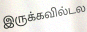
இருக்கவில்டல